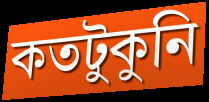
কতটুকুনি